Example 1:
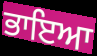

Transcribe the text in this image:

ਭਾਇਆ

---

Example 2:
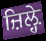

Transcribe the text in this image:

ਜ਼ਿਲ਼੍ਹੇ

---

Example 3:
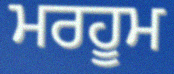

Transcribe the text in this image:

ਮਰਹੂਮ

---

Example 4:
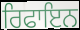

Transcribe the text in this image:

ਰਿਫਾਇਨ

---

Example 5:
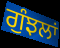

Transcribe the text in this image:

ਗੁੰਝਲਾਂ